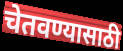
चेतवण्यासाठी